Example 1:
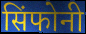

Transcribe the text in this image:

सिंफोनी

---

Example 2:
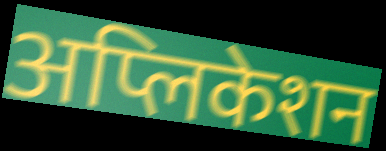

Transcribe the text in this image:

अप्लिकेशन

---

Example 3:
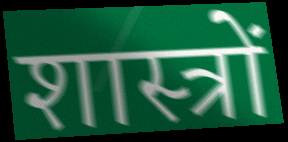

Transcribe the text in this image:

शास्त्रों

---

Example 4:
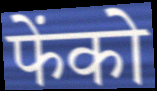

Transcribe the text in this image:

फेंको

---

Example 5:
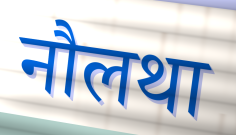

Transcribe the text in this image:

नौलथा